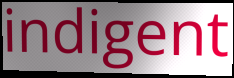
indigent